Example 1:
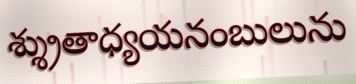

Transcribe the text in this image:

శ్శ్రుతాధ్యయనంబులును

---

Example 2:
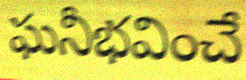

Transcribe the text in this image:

ఘనీభవించే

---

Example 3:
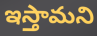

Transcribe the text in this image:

ఇస్తామని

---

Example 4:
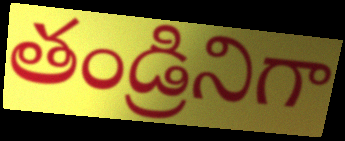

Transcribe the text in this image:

తండ్రినిగా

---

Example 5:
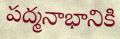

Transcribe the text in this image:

పద్మనాభానికి